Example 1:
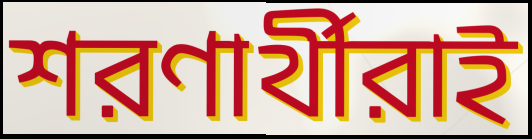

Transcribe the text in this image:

শরণার্থীরাই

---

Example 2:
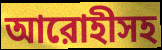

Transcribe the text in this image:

আরোহীসহ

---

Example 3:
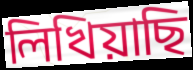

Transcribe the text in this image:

লিখিয়াছি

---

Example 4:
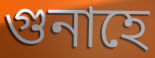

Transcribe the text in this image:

গুনাহে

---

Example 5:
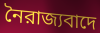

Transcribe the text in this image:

নৈরাজ্যবাদে